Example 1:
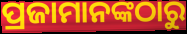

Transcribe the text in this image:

ପ୍ରଜାମାନଙ୍କଠାରୁ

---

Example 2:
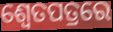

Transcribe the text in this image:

ଶ୍ଵେତପତ୍ରରେ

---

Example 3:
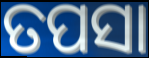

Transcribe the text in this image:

ତପସା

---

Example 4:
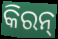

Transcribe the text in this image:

କିରନ୍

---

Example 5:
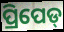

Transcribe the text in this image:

ପ୍ରିପେଡ୍